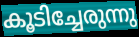
കൂടിച്ചേരുന്നു